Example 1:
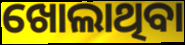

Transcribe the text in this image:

ଖୋଲାଥିବା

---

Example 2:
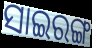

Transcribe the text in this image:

ସାଇରଙ୍ଗ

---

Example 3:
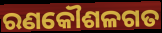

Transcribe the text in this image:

ରଣକୌଶଳଗତ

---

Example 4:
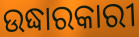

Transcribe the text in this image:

ଉଦ୍ଧାରକାରୀ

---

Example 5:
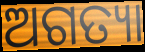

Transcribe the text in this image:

ଅଗତ୍ୟା